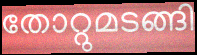
തോറ്റുമടങ്ങി